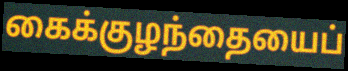
கைக்குழந்தையைப்